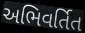
અભિવર્તિત